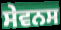
ਸੇਵਨਸ